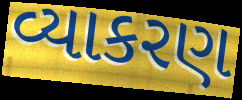
વ્યાકરણ